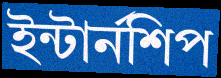
ইন্টার্নশিপ